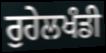
ਰੁਹੇਲਖੰਡੀ